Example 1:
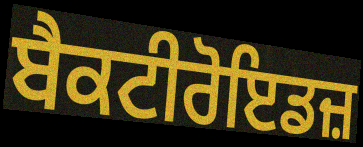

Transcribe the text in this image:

ਬੈਕਟੀਰੋਇਡਜ਼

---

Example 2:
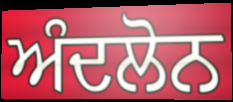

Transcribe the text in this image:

ਅੰਦਲੋਨ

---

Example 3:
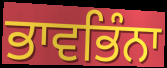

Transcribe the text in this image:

ਭਾਵਭਿੰਨਾ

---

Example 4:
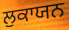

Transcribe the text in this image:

ਲੁਕਾਯਨ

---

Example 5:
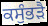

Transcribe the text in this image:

ਕਸੁੰਭੜੈ